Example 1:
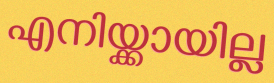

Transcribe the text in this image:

എനിയ്ക്കായില്ല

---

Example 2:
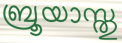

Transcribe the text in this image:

ബ്രൂയാസ്തു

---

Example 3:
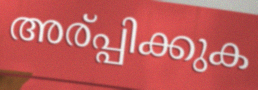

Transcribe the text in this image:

അര്പ്പിക്കുക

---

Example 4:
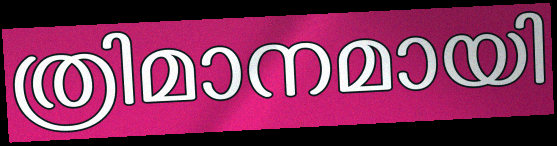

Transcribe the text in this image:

ത്രിമാനമായി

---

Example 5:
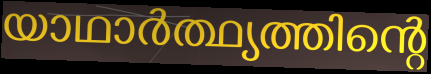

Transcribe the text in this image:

യാഥാർത്ഥ്യത്തിന്റെ